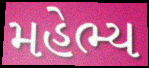
મહેભ્ય